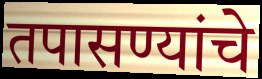
तपासण्यांचे